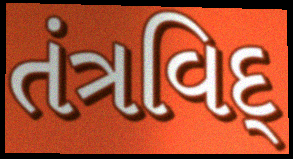
તંત્રવિદ્